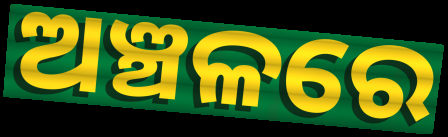
ଅଞ୍ଚଳରେ